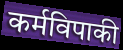
कर्मविपाकी